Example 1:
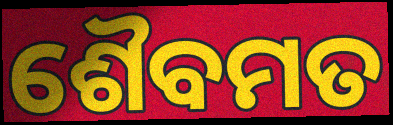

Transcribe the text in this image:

ଶୈବମତ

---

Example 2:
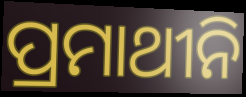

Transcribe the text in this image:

ପ୍ରମାଥୀନି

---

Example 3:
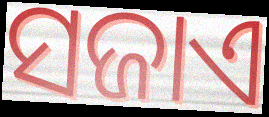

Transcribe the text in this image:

ସଜାଏ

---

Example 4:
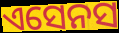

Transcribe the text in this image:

ଏସେନସ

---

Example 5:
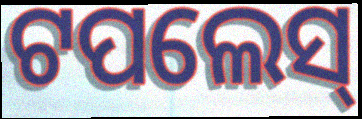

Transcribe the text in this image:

ଟପଲେସ୍